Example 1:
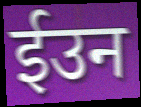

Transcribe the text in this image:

ईउन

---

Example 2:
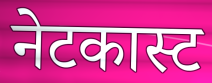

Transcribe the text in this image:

नेटकास्ट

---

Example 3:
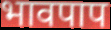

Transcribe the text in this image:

भावपाप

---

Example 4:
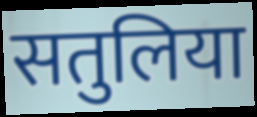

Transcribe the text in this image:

सतुलिया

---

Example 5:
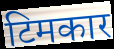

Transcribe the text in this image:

टिमकार